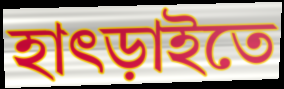
হাৎড়াইতে